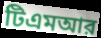
টিএমআর